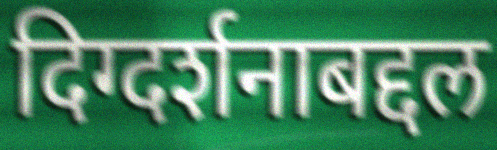
दिग्दर्शनाबद्दल